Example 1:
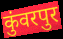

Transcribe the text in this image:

कुंवरपुर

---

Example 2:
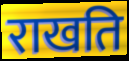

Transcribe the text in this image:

राखति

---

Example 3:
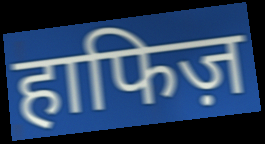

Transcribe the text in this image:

हाफिज़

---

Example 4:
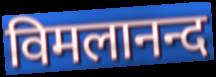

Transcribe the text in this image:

विमलानन्द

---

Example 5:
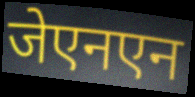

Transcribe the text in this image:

जेएनएन